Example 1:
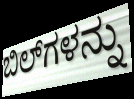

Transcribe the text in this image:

ಬಿಲ್‌ಗಳನ್ನು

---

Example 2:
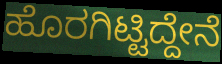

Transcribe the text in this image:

ಹೊರಗಿಟ್ಟಿದ್ದೇನೆ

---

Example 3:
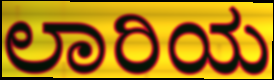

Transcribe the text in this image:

ಲಾರಿಯ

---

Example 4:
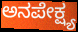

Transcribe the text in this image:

ಅನಪೇಕ್ಷ್ಯ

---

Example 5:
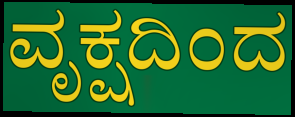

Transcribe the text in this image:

ವೃಕ್ಷದಿಂದ